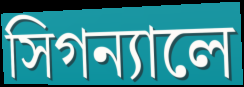
সিগন্যালে